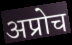
अप्रोच